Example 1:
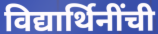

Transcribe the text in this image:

विद्यार्थिनींची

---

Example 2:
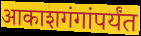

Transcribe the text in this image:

आकाशगंगांपर्यंत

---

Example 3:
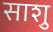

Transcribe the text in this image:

साश्रु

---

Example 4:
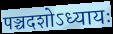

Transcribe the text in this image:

पञ्चदशोऽध्यायः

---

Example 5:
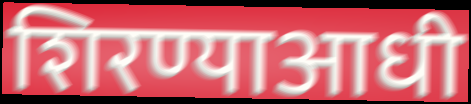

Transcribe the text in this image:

शिरण्याआधी